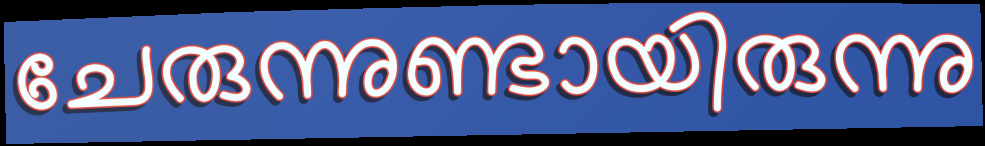
ചേരുന്നുണ്ടായിരുന്നു